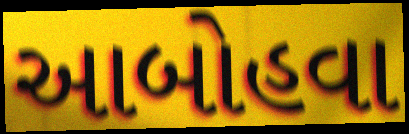
આબોહવા